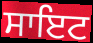
ਸਾਇਟ